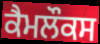
ਕੈਮਲੌਕਸ